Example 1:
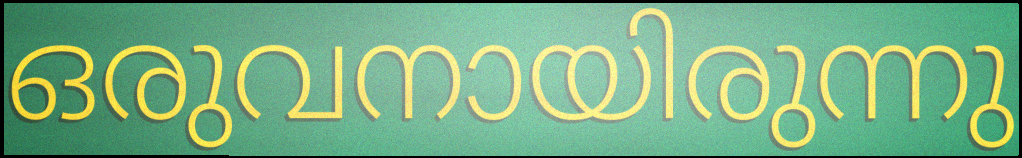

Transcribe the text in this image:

ഒരുവനായിരുന്നു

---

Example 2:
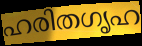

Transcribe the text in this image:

ഹരിതഗൃഹ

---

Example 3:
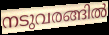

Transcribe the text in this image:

നടുവരങ്ങിൽ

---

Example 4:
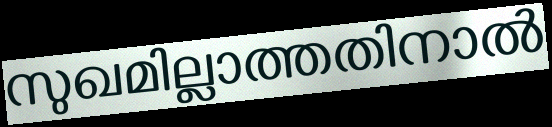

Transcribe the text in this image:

സുഖമില്ലാത്തതിനാൽ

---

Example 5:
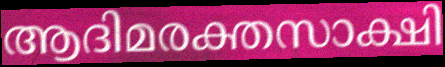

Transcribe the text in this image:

ആദിമരക്തസാക്ഷി